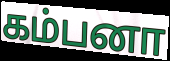
கம்பனா